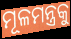
ମୂଳମନ୍ତ୍ରକୁ